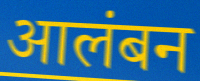
आलंबन